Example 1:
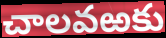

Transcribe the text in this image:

చాలవఱకు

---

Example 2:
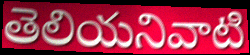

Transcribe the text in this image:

తెలియనివాటి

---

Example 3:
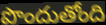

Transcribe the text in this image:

పొందుతోంది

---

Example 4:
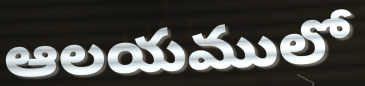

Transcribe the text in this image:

ఆలయములో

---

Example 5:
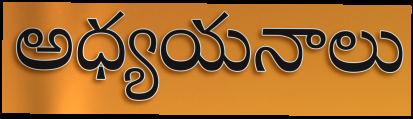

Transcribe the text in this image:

అధ్యయనాలు